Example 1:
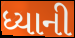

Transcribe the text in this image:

ધ્યાની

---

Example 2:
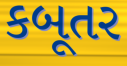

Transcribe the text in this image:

કબૂતર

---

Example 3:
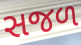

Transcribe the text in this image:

સજળ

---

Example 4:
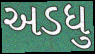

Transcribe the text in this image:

અડધુ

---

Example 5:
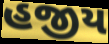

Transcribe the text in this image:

હજીય